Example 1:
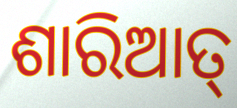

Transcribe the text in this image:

ଶାରିଆତ୍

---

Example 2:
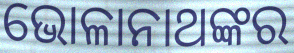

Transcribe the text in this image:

ଭୋଳାନାଥଙ୍କର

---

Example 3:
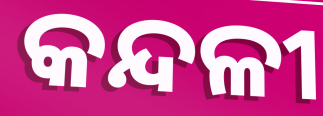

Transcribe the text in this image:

କନ୍ଦଳୀ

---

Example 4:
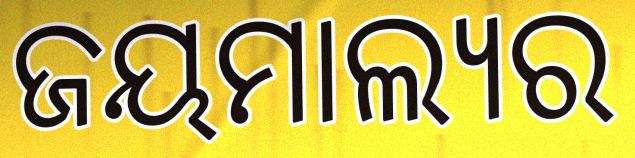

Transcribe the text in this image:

ଜୟମାଲ୍ୟର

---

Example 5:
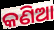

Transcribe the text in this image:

କଣିଆ